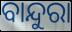
ବାନ୍ଦୁରା